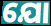
ଯୋ